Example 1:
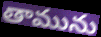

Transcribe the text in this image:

తామును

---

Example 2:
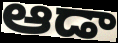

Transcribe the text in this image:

ఆడా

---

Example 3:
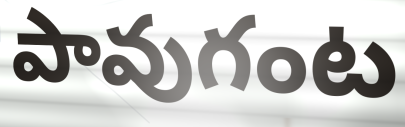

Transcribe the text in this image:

పావుగంట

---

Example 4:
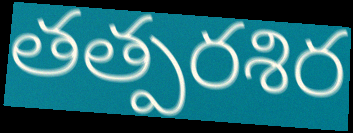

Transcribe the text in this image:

తత్పరశిర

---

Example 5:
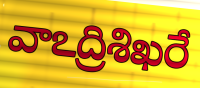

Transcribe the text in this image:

వాఽద్రిశిఖరే